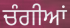
ਚੰਗੀਆਂ